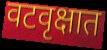
वटवृक्षात